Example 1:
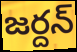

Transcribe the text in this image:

జర్దన్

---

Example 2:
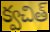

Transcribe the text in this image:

క్వచిత్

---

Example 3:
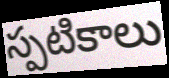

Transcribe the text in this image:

స్పటికాలు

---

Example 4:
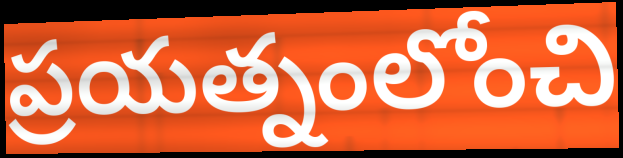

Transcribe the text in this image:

ప్రయత్నంలోంచి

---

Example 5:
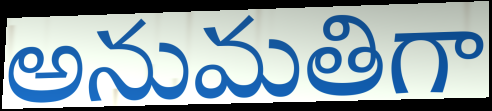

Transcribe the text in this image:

అనుమతిగా